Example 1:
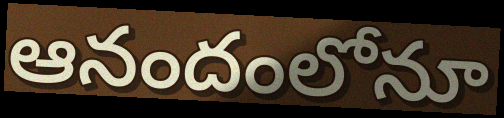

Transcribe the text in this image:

ఆనందంలోనూ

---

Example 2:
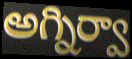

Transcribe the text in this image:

అగ్నిర్వా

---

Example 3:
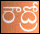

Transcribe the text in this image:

రౌద్రో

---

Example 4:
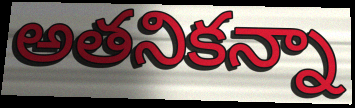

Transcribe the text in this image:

అతనికన్నా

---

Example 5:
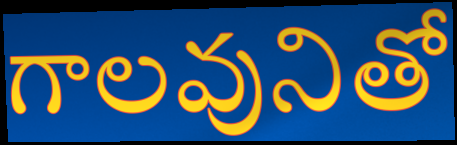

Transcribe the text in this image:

గాలవునితో